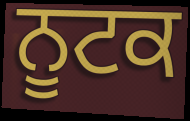
ਨੂਟਕ